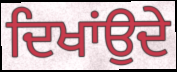
ਦਿਖਾਂਉਦੇ